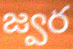
జ్వర